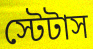
স্টেটাস